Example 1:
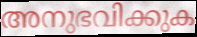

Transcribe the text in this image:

അനുഭവിക്കുക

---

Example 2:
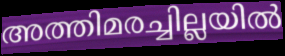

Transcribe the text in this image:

അത്തിമരച്ചില്ലയിൽ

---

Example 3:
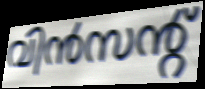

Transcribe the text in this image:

വിൻസന്റ്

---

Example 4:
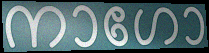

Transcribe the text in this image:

നാഗോ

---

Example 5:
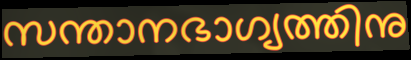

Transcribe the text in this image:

സന്താനഭാഗ്യത്തിനു